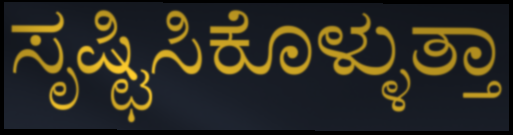
ಸೃಷ್ಟಿಸಿಕೊಳ್ಳುತ್ತಾ